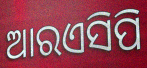
ଆରଏସିପି